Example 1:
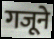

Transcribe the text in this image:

गजूने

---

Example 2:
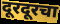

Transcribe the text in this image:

दूरदूरचा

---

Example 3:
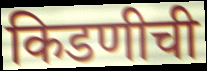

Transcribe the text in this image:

किडणीची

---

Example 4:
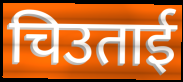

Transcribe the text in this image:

चिउताई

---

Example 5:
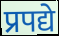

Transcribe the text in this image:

प्रपद्ये